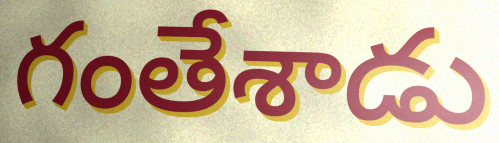
గంతేశాడు